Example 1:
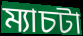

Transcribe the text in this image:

ম্যাচটা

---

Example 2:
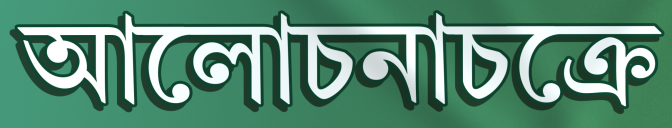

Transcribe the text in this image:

আলোচনাচক্রে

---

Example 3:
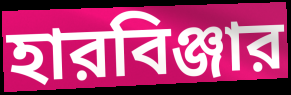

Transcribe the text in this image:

হারবিঞ্জার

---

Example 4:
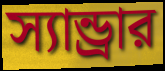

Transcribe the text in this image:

স্যান্ড্রার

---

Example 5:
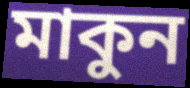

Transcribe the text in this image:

মাকুন